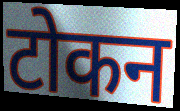
टोकन